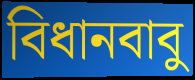
বিধানবাবু